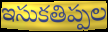
ఇసుకతిప్పల